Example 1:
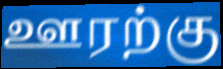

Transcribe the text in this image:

ஊரற்கு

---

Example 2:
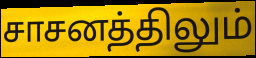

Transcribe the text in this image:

சாசனத்திலும்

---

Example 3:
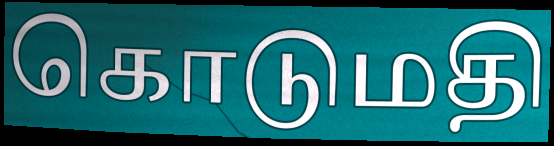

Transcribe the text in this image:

கொடுமதி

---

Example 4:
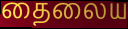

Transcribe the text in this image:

தைலைய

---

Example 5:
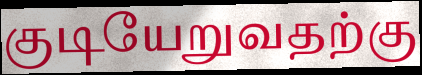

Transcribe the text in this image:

குடியேறுவதற்கு